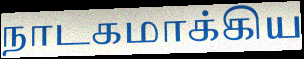
நாடகமாக்கிய